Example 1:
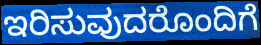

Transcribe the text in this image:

ಇರಿಸುವುದರೊಂದಿಗೆ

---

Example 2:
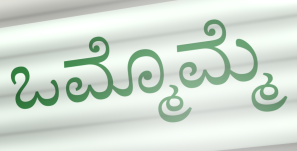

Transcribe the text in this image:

ಒಮ್ಮೊಮ್ಮೆ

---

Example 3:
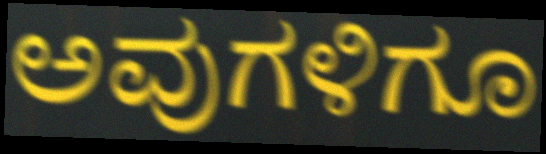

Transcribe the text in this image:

ಅವುಗಳಿಗೂ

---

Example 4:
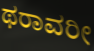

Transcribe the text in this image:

ಥರಾವರೀ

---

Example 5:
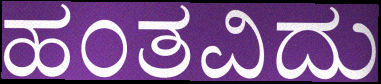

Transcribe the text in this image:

ಹಂತವಿದು